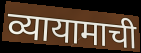
व्यायामाची